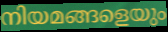
നിയമങ്ങളെയും